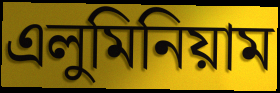
এলুমিনিয়াম